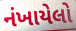
નંખાયેલો